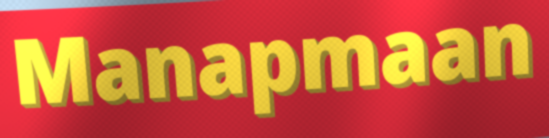
Manapmaan